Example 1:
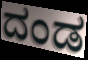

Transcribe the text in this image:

ದಂಡ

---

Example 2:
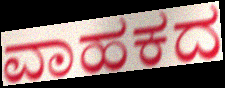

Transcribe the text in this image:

ವಾಹಕದ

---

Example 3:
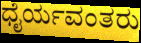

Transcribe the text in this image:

ಧೈರ್ಯವಂತರು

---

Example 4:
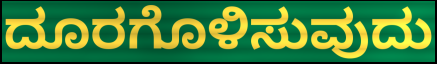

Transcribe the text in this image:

ದೂರಗೊಳಿಸುವುದು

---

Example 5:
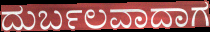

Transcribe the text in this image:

ದುರ್ಬಲವಾದಾಗ